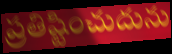
ప్రతిష్టించుదును